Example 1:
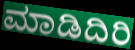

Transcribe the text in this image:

ಮಾಡಿದಿರಿ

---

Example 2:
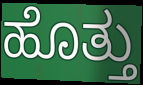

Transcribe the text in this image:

ಹೊತ್ತು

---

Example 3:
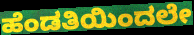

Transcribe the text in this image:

ಹೆಂಡತಿಯಿಂದಲೇ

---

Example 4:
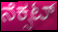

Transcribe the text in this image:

ನೆಕ್ಸಟ್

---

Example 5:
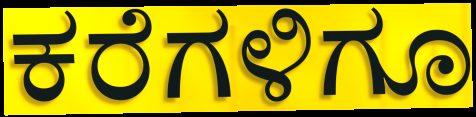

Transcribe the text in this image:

ಕರೆಗಳಿಗೂ